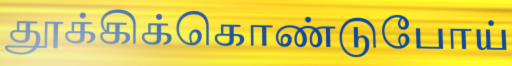
தூக்கிக்கொண்டுபோய்